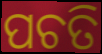
ପଚତି